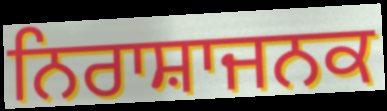
ਨਿਰਾਸ਼ਾਜਨਕ